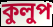
কুলুপ